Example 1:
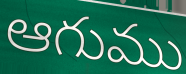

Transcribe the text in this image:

ఆగుము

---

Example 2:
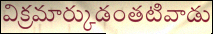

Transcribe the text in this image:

విక్రమార్కుడంతటివాడు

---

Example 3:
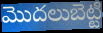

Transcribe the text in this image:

మొదలుబెట్టి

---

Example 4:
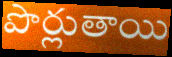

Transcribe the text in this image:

పొర్లుతాయి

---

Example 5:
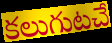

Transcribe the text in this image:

కలుగుటచే